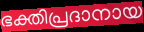
ഭക്തിപ്രദാനായ